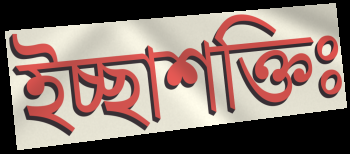
ইচ্ছাশক্তিঃ